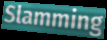
Slamming